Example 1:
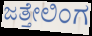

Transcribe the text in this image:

ಜತ್ತೇಲಿಂಗ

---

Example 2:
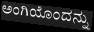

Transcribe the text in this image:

ಅಂಗಿಯೊಂದನ್ನು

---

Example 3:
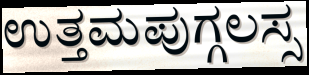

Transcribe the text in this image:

ಉತ್ತಮಪುಗ್ಗಲಸ್ಸ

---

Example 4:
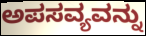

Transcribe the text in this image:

ಅಪಸವ್ಯವನ್ನು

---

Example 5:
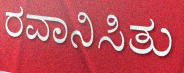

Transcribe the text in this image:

ರವಾನಿಸಿತು